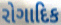
રોગાદિક